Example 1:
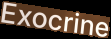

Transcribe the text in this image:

Exocrine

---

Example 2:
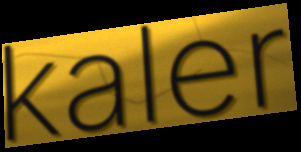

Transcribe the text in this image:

kaler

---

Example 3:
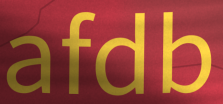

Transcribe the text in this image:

afdb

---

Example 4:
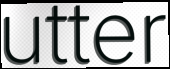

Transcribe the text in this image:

utter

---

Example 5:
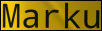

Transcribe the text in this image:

Marku